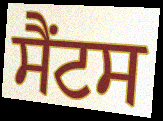
ਸੈਂਟਸ